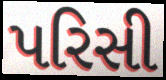
પરિસી